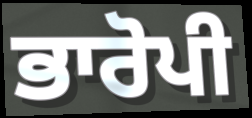
ਭਾਰੋਪੀ